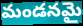
మండనమై